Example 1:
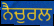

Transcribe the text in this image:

ਨੈਚੁਰਲ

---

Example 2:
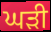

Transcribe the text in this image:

ਘਡ਼ੀ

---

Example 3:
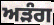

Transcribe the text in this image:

ਅੜੰਗ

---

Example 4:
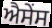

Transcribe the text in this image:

ਐਸੇਂਸ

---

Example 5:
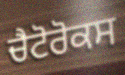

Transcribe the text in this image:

ਚੈਟੋਰੋਕਸ